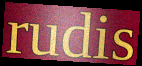
rudis